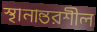
স্থানান্তরশীল